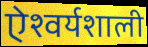
ऐश्वर्यशाली